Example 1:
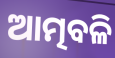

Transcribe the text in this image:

ଆତ୍ମବଳି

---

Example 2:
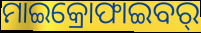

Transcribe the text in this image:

ମାଇକ୍ରୋଫାଇବର୍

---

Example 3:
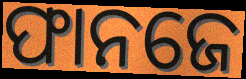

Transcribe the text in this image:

ଫାନଜେ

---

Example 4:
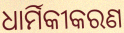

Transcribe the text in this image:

ଧାର୍ମିକୀକରଣ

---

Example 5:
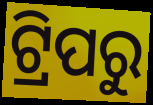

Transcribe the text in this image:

ଟ୍ରିପରୁ